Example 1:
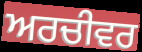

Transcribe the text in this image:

ਅਰਚੀਵਰ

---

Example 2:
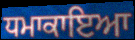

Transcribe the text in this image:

ਧਮਾਕਾਇਆ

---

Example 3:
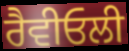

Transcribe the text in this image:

ਰੈਵੀਓਲੀ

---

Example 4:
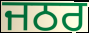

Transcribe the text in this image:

ਜਠਰ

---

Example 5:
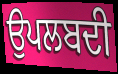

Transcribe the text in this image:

ਉਪਲਬਦੀ